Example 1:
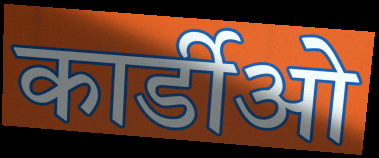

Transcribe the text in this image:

कार्डीओ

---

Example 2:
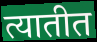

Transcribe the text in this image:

त्यातीत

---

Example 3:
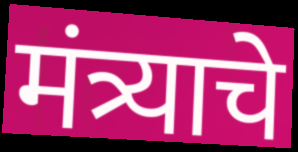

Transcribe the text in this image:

मंत्र्याचे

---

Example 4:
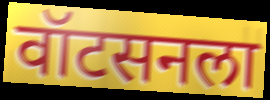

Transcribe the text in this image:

वॉटसनला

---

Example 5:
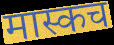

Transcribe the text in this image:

मास्कच